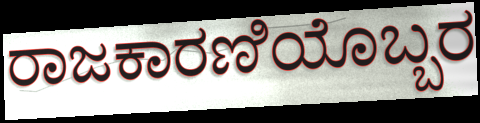
ರಾಜಕಾರಣಿಯೊಬ್ಬರ